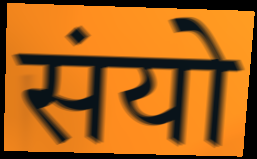
संयो